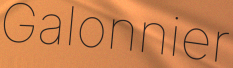
Galonnier